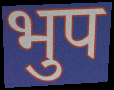
भुप